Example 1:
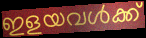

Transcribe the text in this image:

ഇളയവൾക്ക്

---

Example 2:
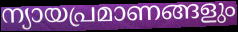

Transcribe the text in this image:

ന്യായപ്രമാണങ്ങളും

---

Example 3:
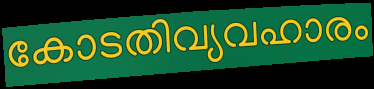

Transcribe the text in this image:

കോടതിവ്യവഹാരം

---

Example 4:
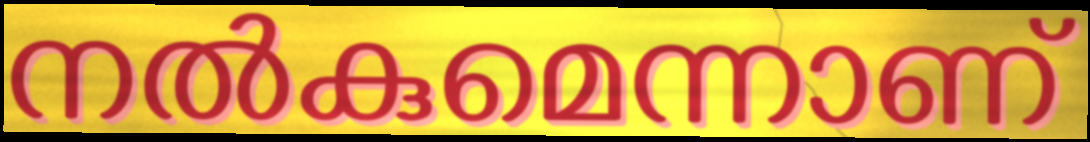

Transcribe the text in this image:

നൽകുമെന്നാണ്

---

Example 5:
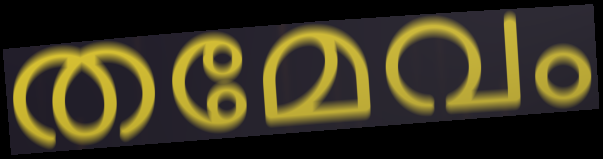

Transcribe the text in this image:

തമേവം